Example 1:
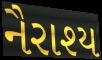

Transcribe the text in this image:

નૈરાશ્ય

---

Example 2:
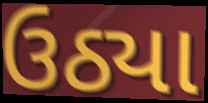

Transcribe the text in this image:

ઉઠ્યા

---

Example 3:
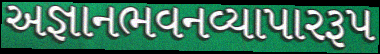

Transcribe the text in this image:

અજ્ઞાનભવનવ્યાપારરૂપ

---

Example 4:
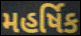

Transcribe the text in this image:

મહર્ષિક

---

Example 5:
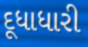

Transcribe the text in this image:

દૂધાધારી